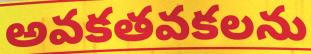
అవకతవకలను